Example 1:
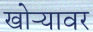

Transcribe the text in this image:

खोऱ्यावर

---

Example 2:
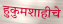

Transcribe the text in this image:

हुकुमशाहीचे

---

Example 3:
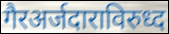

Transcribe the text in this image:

गैरअर्जदाराविरुध्द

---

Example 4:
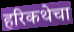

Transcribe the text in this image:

हरिकथेचा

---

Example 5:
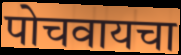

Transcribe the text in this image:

पोचवायचा